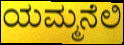
ಯಮ್ಮನೆಲಿ